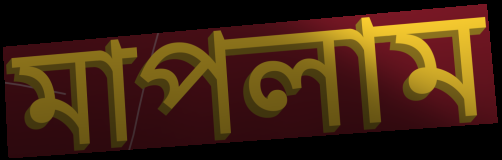
মাপলাম